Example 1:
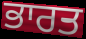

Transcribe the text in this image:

ਭਾਰਤ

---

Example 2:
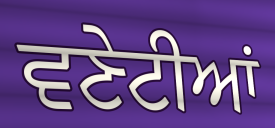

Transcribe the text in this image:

ਵਣੇਟੀਆਂ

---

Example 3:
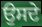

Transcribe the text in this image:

ਉਸਦੇ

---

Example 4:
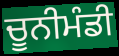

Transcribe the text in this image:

ਚੂਨੀਮੰਡੀ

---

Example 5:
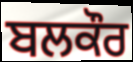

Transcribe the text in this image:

ਬਲਕੌਰ